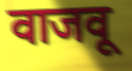
वाजवू